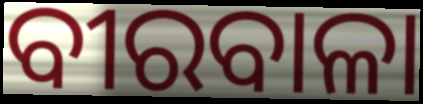
ବୀରବାଳା